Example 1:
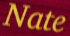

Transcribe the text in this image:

Nate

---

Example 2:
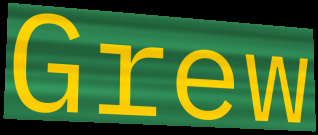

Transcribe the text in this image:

Grew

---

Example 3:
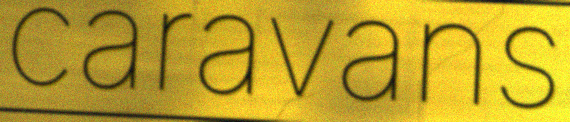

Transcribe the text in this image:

caravans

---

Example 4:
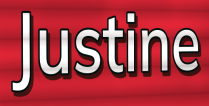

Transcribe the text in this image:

Justine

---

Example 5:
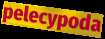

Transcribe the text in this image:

pelecypoda